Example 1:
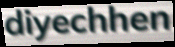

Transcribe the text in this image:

diyechhen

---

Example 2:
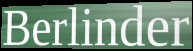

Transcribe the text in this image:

Berlinder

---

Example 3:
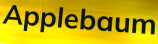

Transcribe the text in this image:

Applebaum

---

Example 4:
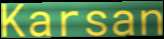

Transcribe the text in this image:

Karsan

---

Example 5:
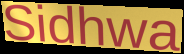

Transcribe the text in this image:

Sidhwa